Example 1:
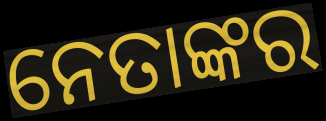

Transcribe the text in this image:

ନେତାଙ୍କର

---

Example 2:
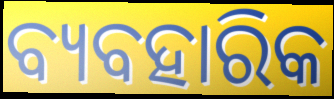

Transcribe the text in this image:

ବ୍ଯବହାରିକ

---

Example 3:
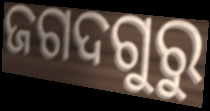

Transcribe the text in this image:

ଜଗଦଗୁରୁ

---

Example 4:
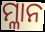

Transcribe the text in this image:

ମ୍ଳାନ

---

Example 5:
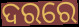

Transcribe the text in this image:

ଦରରେ